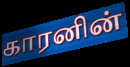
காரனின்